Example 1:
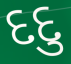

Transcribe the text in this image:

દદુ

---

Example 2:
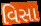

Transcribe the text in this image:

વિસા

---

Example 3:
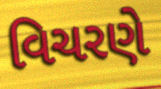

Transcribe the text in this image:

વિચરણે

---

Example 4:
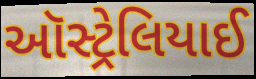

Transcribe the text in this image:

ઑસ્ટ્રેલિયાઈ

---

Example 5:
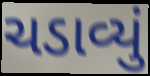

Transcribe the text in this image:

ચડાવ્યું